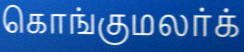
கொங்குமலர்க்